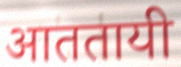
आततायी